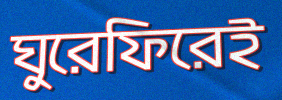
ঘুরেফিরেই